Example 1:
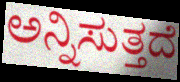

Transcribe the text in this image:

ಅನ್ನಿಸುತ್ತದೆ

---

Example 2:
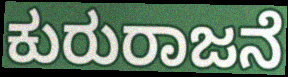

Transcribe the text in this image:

ಕುರುರಾಜನೆ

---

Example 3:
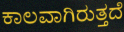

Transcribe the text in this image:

ಕಾಲವಾಗಿರುತ್ತದೆ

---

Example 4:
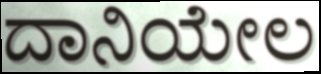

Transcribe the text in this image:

ದಾನಿಯೇಲ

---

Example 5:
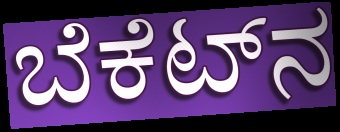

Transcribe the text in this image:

ಬೆಕೆಟ್‌ನ